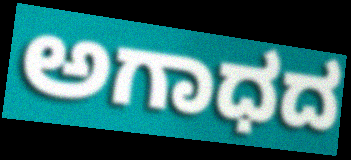
ಅಗಾಧದ